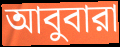
আবুবারা